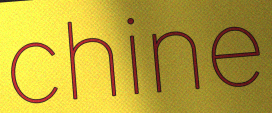
chine